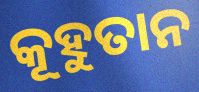
କୂହୁତାନ